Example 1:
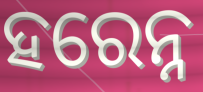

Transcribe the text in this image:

ହରେନ୍ନ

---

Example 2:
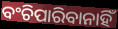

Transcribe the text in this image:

ବଂଚିପାରିବାନାହିଁ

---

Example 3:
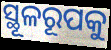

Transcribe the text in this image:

ସ୍ଥୂଳରୂପକୁ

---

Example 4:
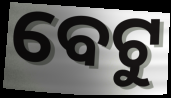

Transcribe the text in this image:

ବେଟୁ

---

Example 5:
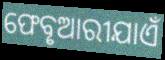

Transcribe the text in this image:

ଫେବୃଆରୀଯାଏଁ